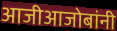
आजीआजोबांनी